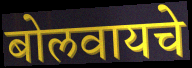
बोलवायचे